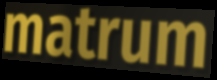
matrum